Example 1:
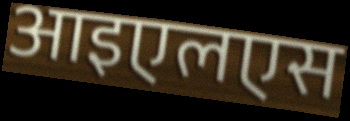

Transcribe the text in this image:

आइएलएस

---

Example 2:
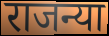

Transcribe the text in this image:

राजन्या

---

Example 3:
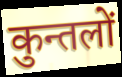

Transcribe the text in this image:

कुन्तलों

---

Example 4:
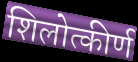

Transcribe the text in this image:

शिलोत्कीर्ण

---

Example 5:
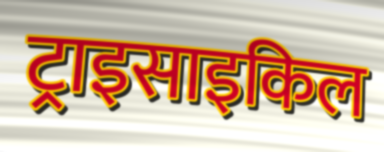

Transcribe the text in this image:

ट्राइसाइकिल